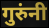
गुरुंनी